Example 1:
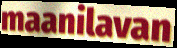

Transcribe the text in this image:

maanilavan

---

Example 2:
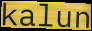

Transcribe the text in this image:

kalun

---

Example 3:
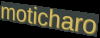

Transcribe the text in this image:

moticharo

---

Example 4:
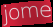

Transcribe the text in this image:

jome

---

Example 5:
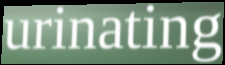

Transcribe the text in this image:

urinating